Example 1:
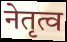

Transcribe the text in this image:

नेतृत्‍व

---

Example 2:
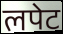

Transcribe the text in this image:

लपेट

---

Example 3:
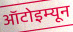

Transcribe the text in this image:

ऑटोइम्यून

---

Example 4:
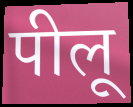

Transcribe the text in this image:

पीलू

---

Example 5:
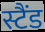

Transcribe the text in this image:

स्टैंड